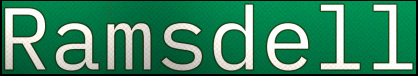
Ramsdell